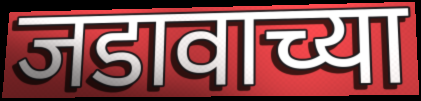
जडावाच्या